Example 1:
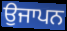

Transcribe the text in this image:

ਉਜਾਪਨ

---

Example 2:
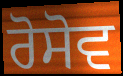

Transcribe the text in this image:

ਰੋਸੋਵ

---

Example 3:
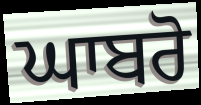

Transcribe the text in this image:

ਘਾਬਰੋ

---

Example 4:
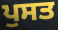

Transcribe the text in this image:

ਪੁਸਤ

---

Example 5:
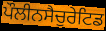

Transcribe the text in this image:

ਪੌਲੀਨਸੈਚੁਰੇਟਿਡ